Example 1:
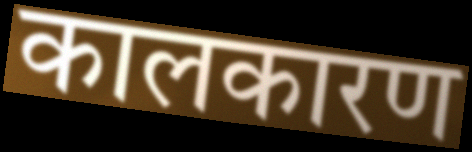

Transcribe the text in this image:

कालकारण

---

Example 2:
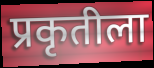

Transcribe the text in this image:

प्रकृतीला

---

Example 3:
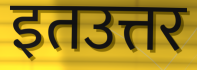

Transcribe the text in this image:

इतउत्तर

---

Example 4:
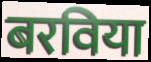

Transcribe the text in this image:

बरविया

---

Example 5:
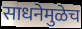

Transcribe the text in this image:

साधनेमुळेच